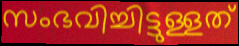
സംഭവിച്ചിട്ടുള്ളത്